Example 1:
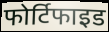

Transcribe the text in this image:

फोर्टिफाइड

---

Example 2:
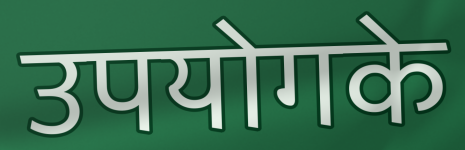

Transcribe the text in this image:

उपयोगके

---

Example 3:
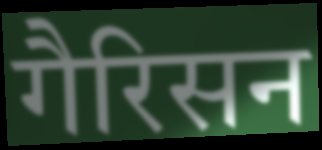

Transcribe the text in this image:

गैरिसन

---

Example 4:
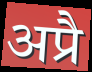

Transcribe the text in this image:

अप्रै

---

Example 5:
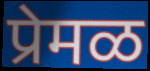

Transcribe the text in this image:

प्रेमळ